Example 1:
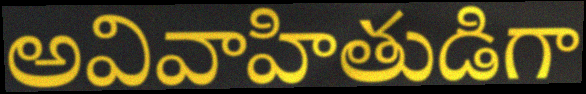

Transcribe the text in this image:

అవివాహితుడిగా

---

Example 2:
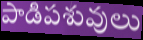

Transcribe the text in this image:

పాడిపశువులు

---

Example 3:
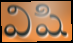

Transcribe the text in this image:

విషి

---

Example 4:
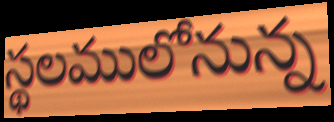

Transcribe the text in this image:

స్థలములోనున్న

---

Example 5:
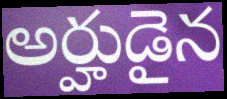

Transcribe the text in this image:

అర్హుడైన